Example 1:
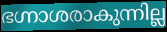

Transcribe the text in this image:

ഭഗ്നാശരാകുന്നില്ല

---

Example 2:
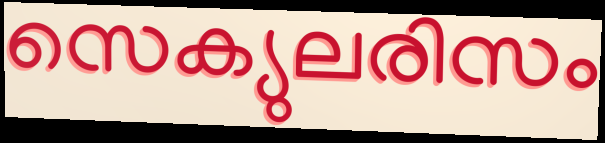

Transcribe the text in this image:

സെക്യുലരിസം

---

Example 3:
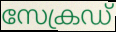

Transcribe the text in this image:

സേക്രഡ്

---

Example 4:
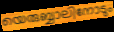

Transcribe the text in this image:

യെരുബ്ബാലിനോടും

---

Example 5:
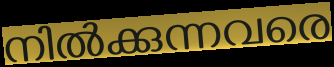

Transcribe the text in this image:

നിൽക്കുന്നവരെ